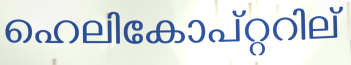
ഹെലികോപ്റ്ററില്